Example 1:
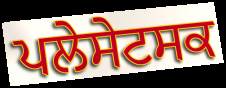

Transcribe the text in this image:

ਪਲੇਸੇਟਸਕ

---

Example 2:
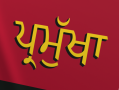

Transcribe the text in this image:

ਪ੍ਰਮੁੱਖਾ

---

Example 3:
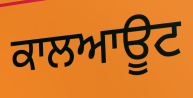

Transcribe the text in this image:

ਕਾਲਆਊਟ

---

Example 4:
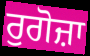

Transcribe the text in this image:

ਰੁਗੋਜ਼ਾ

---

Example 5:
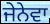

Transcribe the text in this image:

ਜੇਨੇਵਾ